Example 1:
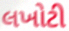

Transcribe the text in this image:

લખોટી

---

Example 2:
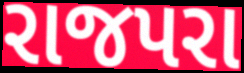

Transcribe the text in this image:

રાજપરા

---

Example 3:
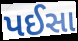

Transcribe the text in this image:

પઈસા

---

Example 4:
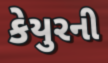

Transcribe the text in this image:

કેયુરની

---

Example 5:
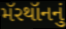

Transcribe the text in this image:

મૅરથૉનનું